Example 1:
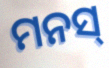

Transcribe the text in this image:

ମନସ୍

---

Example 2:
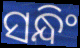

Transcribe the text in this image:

ସନ୍ଧିଂ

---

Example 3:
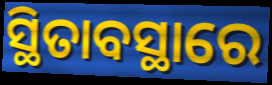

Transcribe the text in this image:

ସ୍ଥିତାବସ୍ଥାରେ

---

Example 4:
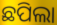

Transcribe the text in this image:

ଛପିଲା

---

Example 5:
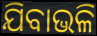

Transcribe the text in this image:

ଯିବାଭଳି